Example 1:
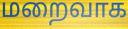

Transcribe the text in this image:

மறைவாக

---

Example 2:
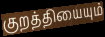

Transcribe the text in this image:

குறத்தியையும்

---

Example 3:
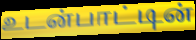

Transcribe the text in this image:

உடன்பாட்டின்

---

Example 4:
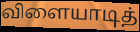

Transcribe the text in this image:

விளையாடித்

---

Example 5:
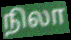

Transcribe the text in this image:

நிலா